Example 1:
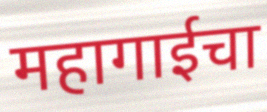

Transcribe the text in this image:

महागाईचा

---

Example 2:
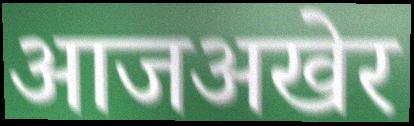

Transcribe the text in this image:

आजअखेर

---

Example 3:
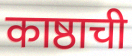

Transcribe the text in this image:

काष्ठाची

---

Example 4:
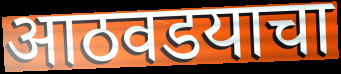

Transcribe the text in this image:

आठवडयाचा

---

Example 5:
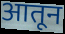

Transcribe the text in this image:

आतून